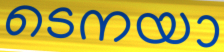
ടെനയാ